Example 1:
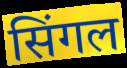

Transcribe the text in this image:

सिंगल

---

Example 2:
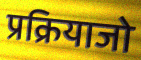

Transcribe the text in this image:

प्रक्रियाजो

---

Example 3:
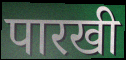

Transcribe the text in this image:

पारखी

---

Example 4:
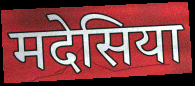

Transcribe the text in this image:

मदेसिया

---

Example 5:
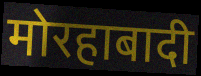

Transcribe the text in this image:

मोरहाबादी